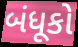
બંધૂકો